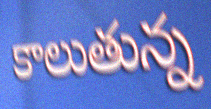
కాలుతున్న